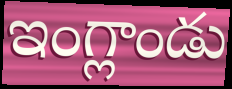
ఇంగ్లాండు